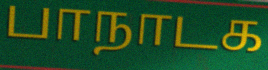
பாநாடக